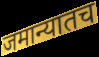
जमान्यातच